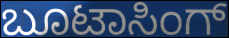
ಬೂಟಾಸಿಂಗ್